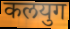
कलयुग